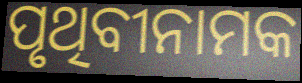
ପୃଥିବୀନାମକ